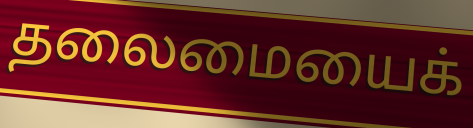
தலைமையைக்